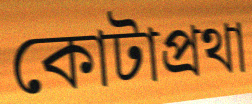
কোটাপ্রথা